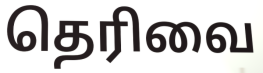
தெரிவை